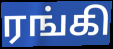
ரங்கி